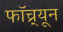
फॉच्र्यून